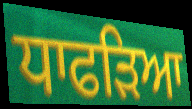
ਧਾਫੜਿਆ